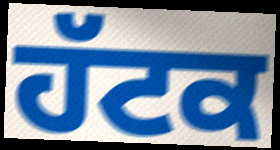
ਹੱਟਕ